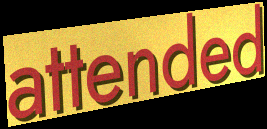
attended